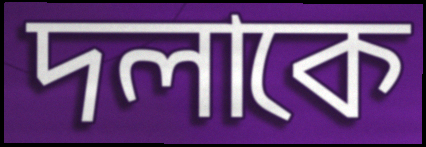
দলাকে